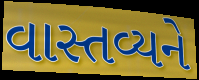
વાસ્તવ્યને